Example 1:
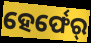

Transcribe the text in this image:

ହେର୍ଫେର୍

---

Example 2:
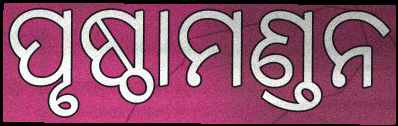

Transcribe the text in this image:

ପୃଷ୍ଠାମଣ୍ଡନ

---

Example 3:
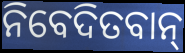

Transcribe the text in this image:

ନିବେଦିତବାନ୍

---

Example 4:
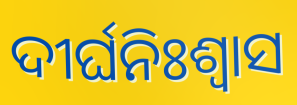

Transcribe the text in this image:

ଦୀର୍ଘନିଃଶ୍ବାସ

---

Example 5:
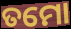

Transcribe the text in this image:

ତମୋ